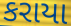
કરાયા